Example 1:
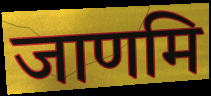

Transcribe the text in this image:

जाणमि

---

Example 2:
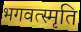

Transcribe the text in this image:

भगवत्स्मृति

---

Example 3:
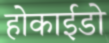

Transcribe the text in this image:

होकाईडो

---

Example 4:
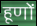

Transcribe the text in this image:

हूणों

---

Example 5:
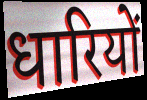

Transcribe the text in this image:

धारियों